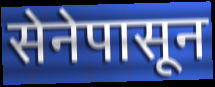
सेनेपासून